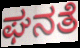
ಘನತೆ